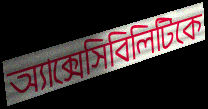
অ্যাক্সেসিবিলিটিকে